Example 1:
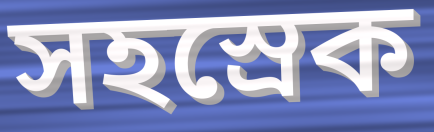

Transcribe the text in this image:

সহস্রেক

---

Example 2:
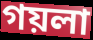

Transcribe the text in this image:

গয়লা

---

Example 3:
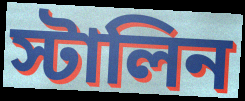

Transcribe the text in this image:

স্টালিন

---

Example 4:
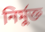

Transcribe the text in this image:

নির্মুক্ত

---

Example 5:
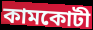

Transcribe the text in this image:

কামকোটী